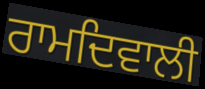
ਰਾਮਦਿਵਾਲੀ